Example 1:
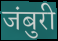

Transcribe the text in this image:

जंबुरी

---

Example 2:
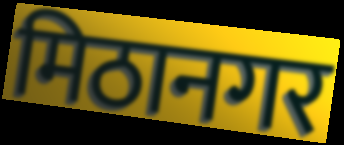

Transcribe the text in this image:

मिठानगर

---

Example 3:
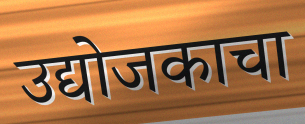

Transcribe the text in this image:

उद्योजकाचा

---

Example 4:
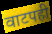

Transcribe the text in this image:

वाटपही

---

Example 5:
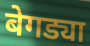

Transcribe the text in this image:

बेगड्या